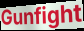
Gunfight